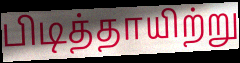
பிடித்தாயிற்று